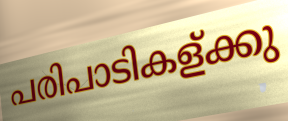
പരിപാടികള്ക്കു